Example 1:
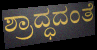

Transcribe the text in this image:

ಶ್ರಾದ್ಧದಂತೆ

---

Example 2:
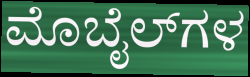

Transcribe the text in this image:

ಮೊಬೈಲ್‌ಗಳ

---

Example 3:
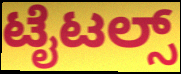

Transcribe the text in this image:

ಟೈಟಲ್ಸ್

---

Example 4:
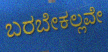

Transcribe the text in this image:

ಬರಬೇಕಲ್ಲವೇ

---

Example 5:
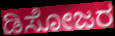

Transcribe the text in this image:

ಡಿಸೋಜರ